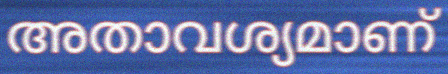
അതാവശ്യമാണ്